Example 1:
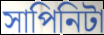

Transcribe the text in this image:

সাপিনিটা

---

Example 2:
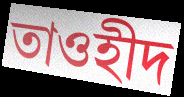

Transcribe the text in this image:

তাওহীদ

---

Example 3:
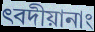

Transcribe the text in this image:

ৎবদীয়ানাং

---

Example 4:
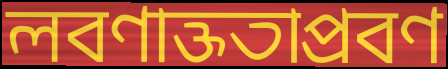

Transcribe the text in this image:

লবণাক্ততাপ্রবণ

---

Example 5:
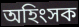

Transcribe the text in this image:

অহিংসক